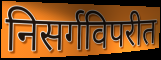
निसर्गविपरीत